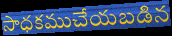
సాధకముచేయబడిన